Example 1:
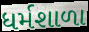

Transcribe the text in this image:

ધર્મશાળા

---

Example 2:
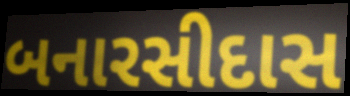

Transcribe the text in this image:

બનારસીદાસ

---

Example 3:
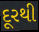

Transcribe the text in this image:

દૂરથી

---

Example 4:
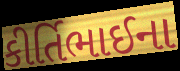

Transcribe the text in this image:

કીર્તિભાઈના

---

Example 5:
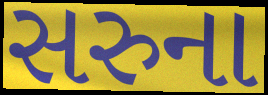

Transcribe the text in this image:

સરુના